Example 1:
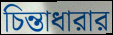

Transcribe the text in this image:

চিন্তাধারার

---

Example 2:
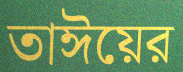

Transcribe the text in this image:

তাঈয়ের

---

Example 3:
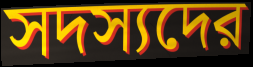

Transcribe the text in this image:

সদস্যদের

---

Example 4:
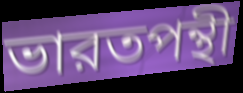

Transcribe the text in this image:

ভারতপন্থী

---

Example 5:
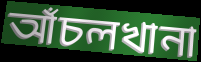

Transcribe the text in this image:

আঁচলখানা